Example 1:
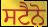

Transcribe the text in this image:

ਸਟੈਨੋ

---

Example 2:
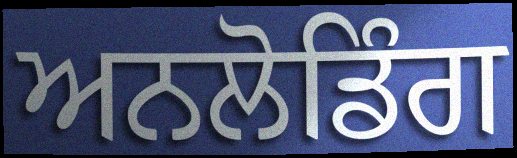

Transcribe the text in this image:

ਅਨਲੋਡਿੰਗ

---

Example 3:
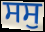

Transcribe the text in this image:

ਸਸੁ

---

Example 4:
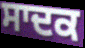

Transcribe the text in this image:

ਸਾਦਕ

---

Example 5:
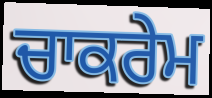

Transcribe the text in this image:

ਚਾਕਰੇਮ